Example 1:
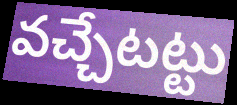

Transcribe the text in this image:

వచ్చేటట్టు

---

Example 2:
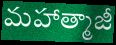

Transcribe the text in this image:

మహాత్మాజీ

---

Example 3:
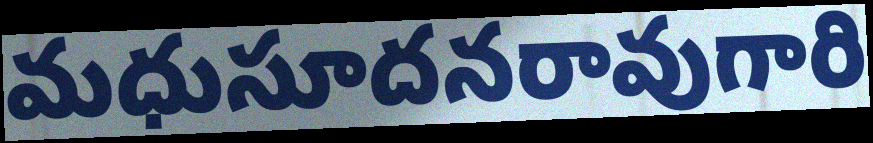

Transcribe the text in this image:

మధుసూదనరావుగారి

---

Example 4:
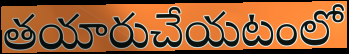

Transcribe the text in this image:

తయారుచేయటంలో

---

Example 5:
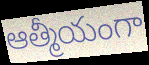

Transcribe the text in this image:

ఆత్మీయంగా